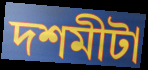
দশমীটা